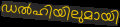
ഡൽഹിയിലുമായി